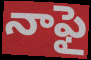
నాఫై